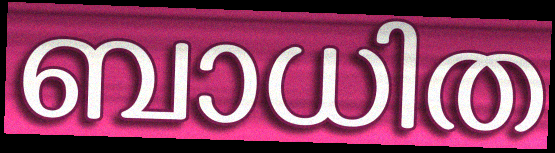
ബാധിത